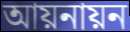
আয়নায়ন